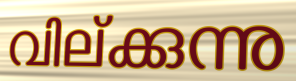
വില്ക്കുന്നു